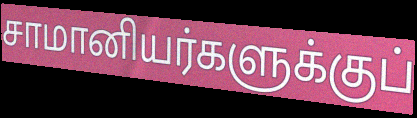
சாமானியர்களுக்குப்